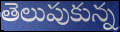
తెలుపుకున్న